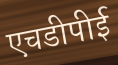
एचडीपीई